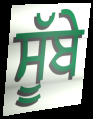
ਸੂੱਬੇ